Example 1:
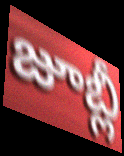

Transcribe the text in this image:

జూబ్లీ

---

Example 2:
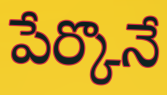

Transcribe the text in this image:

పేర్కొనే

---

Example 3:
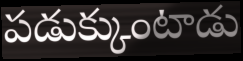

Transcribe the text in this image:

పడుక్కుంటాడు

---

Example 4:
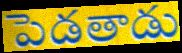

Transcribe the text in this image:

పెడతాడు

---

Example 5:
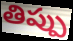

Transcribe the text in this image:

తిప్పు